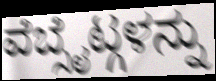
ವೆಬ್ಸೈಟ್ಗಳನ್ನು